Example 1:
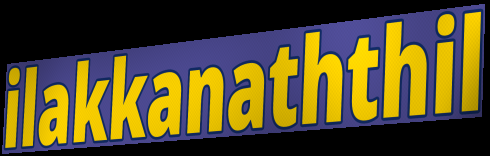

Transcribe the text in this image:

ilakkanaththil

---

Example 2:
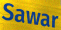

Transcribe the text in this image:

Sawar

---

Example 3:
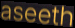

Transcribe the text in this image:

aseeth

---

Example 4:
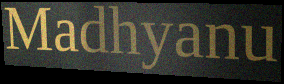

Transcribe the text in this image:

Madhyanu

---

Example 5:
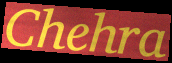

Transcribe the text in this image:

Chehra